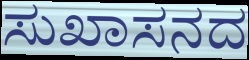
ಸುಖಾಸನದ